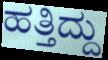
ಹತ್ತಿದ್ದು